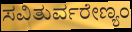
ಸವಿತುರ್ವರೇಣ್ಯಂ